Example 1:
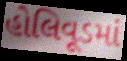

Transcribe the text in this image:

હોલિવૂડમાં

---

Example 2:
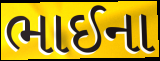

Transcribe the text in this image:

ભાઈના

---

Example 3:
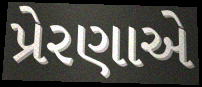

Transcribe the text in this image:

પ્રેરણાએ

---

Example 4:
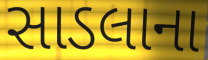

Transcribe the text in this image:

સાડલાના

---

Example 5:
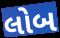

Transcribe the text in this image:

લોબ